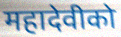
महादेवीको